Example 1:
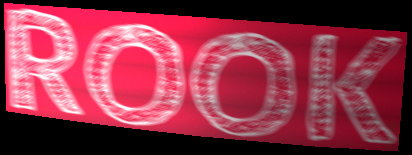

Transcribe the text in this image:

ROOK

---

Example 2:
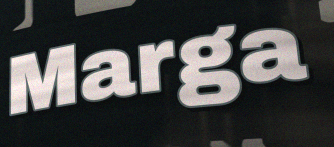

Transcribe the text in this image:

Marga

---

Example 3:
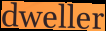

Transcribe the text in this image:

dweller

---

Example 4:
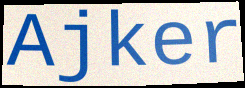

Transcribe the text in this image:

Ajker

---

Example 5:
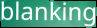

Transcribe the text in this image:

blanking